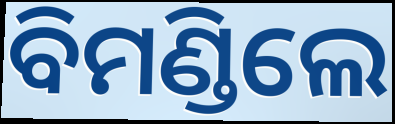
ବିମଣ୍ଡିଲେ